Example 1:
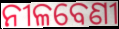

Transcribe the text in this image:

ନୀଳବେଣୀ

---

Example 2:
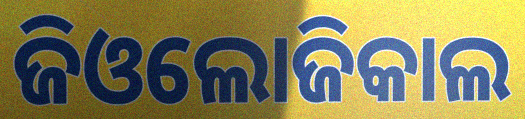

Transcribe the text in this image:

ଜିଓଲୋଜିକାଲ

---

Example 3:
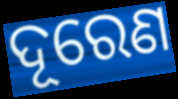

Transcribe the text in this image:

ଦୂରେଣ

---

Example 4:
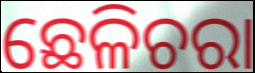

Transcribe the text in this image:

ଛେଳିଚରା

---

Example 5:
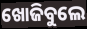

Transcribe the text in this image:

ଖୋଜିବୁଲେ